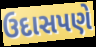
ઉદાસપણે